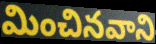
మించినవాని